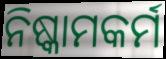
ନିଷ୍କାମକର୍ମ